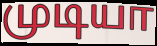
முடியா